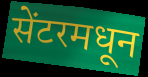
सेंटरमधून